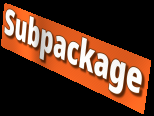
Subpackage